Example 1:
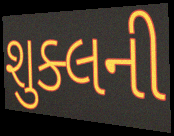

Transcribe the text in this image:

શુક્લની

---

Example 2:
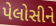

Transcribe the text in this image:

પેલોસીને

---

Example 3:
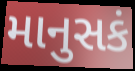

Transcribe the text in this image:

માનુસકં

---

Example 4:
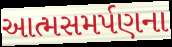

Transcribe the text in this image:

આત્મસમર્પણના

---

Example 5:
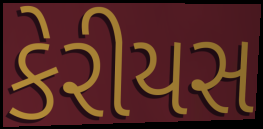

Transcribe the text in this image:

કેરીયસ